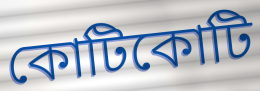
কোটিকোটি